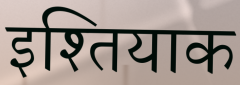
इश्तियाक